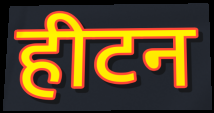
हीटन